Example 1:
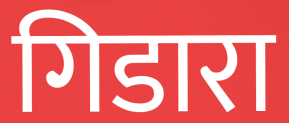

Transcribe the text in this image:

गिडारा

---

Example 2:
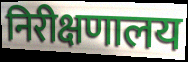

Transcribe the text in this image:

निरीक्षणालय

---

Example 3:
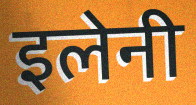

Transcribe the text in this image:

इलेनी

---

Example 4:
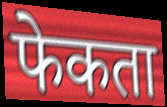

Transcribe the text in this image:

फेकता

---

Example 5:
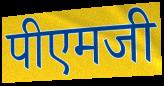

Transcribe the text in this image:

पीएमजी